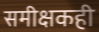
समीक्षकही